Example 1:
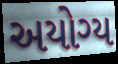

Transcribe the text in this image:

અયોગ્ય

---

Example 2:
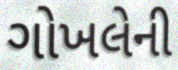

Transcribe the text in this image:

ગોખલેની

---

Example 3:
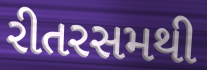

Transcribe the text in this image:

રીતરસમથી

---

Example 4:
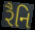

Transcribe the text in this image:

રૈનિ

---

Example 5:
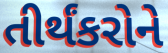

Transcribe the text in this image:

તીર્થંકરોને